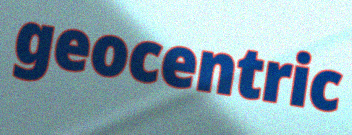
geocentric